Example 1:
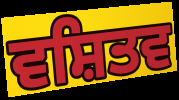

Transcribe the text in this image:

ਵਸ਼ਿਤਵ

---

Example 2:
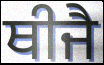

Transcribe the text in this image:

ਥੀਜੈ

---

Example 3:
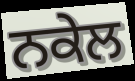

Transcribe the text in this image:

ਨਕੇਲ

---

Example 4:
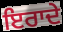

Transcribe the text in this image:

ਇਰਾਦੇ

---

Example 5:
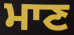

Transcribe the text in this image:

ਮਾਣ